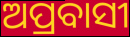
ଅପ୍ରବାସୀ